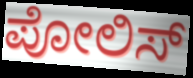
ಪೋಲಿಸ್